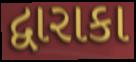
દ્વારાકા